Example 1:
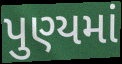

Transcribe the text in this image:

પુણ્યમાં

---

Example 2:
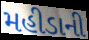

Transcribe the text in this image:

મહીડાની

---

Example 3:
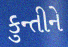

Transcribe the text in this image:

કુન્તીને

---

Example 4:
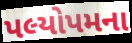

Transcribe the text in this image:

પલ્યોપમના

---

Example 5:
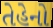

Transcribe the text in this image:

તેહેનો